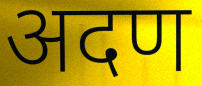
अदण